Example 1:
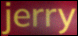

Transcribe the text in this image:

jerry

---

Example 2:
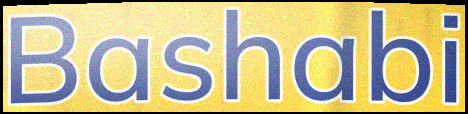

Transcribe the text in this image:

Bashabi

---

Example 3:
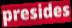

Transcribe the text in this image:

presides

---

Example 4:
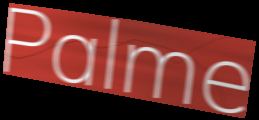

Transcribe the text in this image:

Palme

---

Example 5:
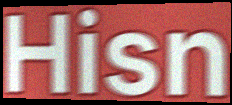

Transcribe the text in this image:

Hisn